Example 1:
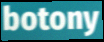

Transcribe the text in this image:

botony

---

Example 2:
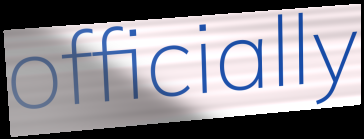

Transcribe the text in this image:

officially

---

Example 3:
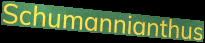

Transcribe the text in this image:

Schumannianthus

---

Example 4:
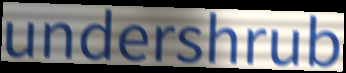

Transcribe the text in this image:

undershrub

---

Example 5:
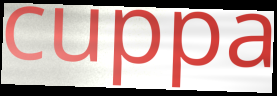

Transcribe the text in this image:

cuppa